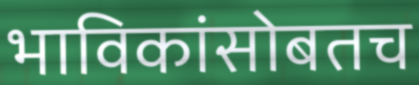
भाविकांसोबतच